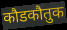
कौडकौतुक